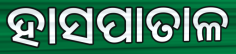
ହାସପାତାଳ